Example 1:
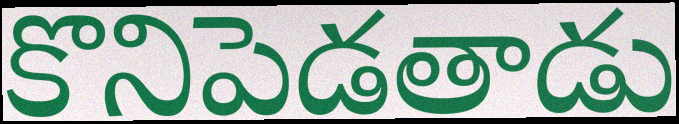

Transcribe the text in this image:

కొనిపెడతాడు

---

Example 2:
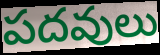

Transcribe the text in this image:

పదవులు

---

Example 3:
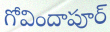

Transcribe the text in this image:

గోవిందాపూర్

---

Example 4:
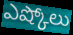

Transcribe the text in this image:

ఎష్కోలు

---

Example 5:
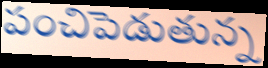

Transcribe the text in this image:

పంచిపెడుతున్న